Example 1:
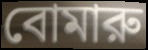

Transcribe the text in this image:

বোমারু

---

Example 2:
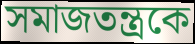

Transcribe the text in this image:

সমাজতন্ত্রকে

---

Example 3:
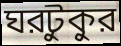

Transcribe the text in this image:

ঘরটুকুর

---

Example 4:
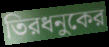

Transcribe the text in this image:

তিরধনুকের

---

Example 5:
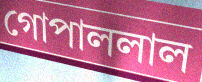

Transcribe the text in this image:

গোপাললাল